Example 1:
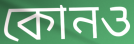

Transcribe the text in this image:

কোনও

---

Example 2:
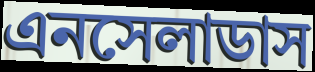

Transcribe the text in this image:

এনসেলাডাস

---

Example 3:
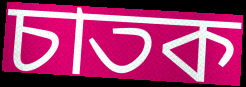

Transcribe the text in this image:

চাতক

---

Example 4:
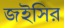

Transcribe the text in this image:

জইসির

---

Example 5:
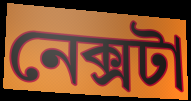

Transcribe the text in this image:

নেক্সটা